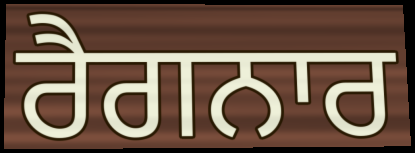
ਰੈਗਨਾਰ